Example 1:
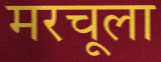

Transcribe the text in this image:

मरचूला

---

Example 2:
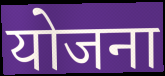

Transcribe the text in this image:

योजना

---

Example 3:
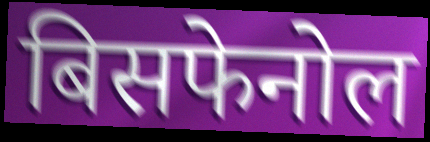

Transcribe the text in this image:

बिसफेनोल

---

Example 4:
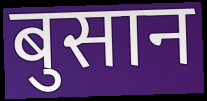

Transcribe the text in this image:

बुसान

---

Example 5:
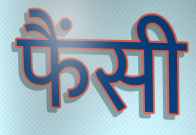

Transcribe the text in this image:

फैंसी